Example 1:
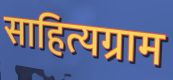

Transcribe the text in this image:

साहित्यग्राम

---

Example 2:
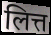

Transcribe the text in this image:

लित्त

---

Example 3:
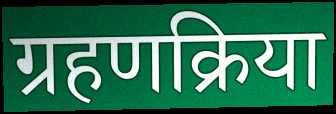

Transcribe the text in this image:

ग्रहणक्रिया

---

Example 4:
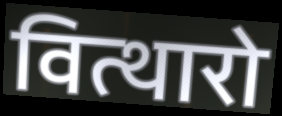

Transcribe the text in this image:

वित्थारो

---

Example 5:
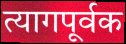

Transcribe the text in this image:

त्यागपूर्वक